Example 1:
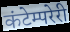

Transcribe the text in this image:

कंटेम्परेरी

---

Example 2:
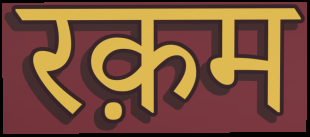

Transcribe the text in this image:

रक़म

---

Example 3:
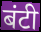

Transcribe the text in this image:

बंटी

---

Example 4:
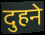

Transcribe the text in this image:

दुहने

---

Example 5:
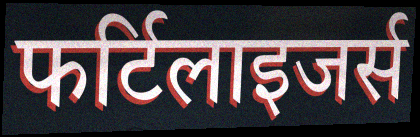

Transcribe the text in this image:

फर्टिलाइजर्स